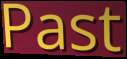
Past